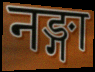
नङ्गा